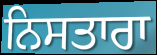
ਨਿਸਤਾਰਾ